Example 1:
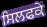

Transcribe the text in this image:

ਸਿਲਫਕੇ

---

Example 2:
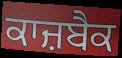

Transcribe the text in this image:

ਕਾਜ਼ਬੈਕ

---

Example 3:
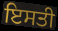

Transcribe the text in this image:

ਇਸਤੀ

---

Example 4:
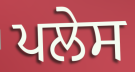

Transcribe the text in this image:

ਪਲੇਸ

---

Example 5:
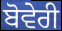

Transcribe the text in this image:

ਬੋਵੇਰੀ